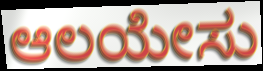
ಆಲಯೇಸು